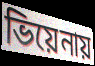
ভিয়েনায়